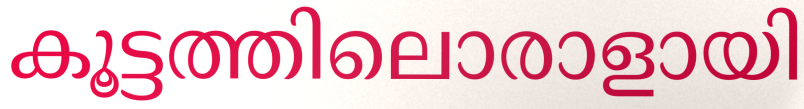
കൂട്ടത്തിലൊരാളായി